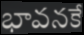
భావనకే